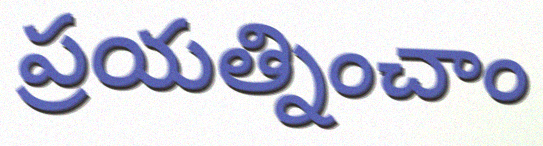
ప్రయత్నించాం